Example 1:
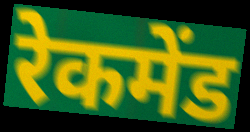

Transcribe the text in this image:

रेकमेंड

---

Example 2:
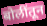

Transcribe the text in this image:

बोलींतून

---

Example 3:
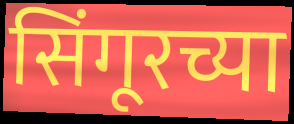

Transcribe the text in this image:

सिंगूरच्या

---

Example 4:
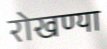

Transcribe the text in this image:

रोखण्या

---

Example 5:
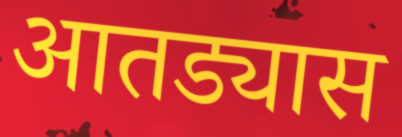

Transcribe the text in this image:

आतड्यास